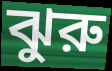
ঝুরু